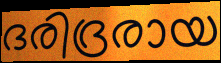
ദരിദ്രരായ